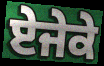
ਏਜੇਕੇ